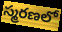
స్మరణలో